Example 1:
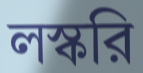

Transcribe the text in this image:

লস্করি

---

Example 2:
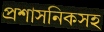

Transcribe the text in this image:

প্রশাসনিকসহ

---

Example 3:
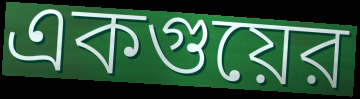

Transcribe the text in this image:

একগুয়ের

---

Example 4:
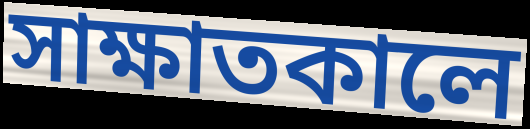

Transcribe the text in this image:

সাক্ষাতকালে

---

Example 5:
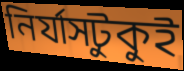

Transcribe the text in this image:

নির্যাসটুকুই